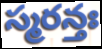
స్మరన్తః